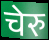
चेरु